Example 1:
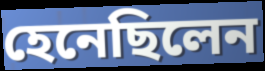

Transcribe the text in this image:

হেনেছিলেন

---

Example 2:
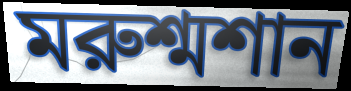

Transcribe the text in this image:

মরুশ্মশান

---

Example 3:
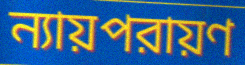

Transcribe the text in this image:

ন্যায়পরায়ণ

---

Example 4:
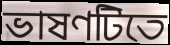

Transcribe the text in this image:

ভাষণটিতে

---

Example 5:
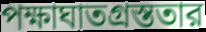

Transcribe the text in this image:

পক্ষাঘাতগ্রস্ততার